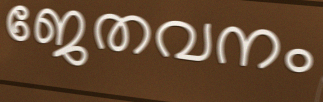
ജേതവനം